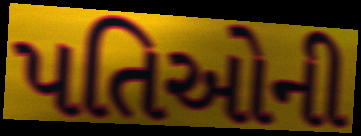
પતિઓની